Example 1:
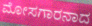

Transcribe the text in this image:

ಮೋಸಗಾರನಾದ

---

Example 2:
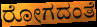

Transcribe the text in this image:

ರೋಗದಂತೆ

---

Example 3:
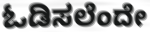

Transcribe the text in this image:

ಓಡಿಸಲೆಂದೇ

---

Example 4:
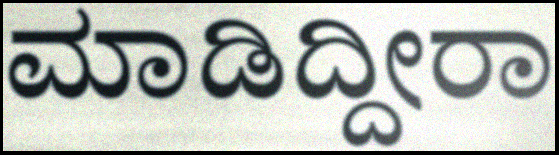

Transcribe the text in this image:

ಮಾಡಿದ್ದೀರಾ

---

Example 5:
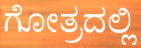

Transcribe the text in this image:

ಗೋತ್ರದಲ್ಲಿ